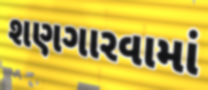
શણગારવામાં